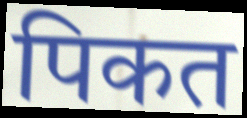
पिकत